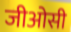
जीओसी